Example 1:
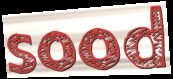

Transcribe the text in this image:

sood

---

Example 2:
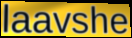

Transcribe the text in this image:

laavshe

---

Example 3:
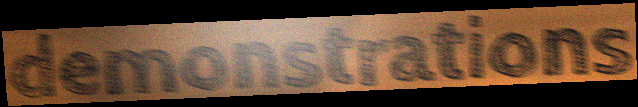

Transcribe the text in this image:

demonstrations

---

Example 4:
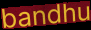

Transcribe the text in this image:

bandhu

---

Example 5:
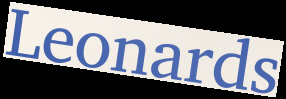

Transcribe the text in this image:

Leonards